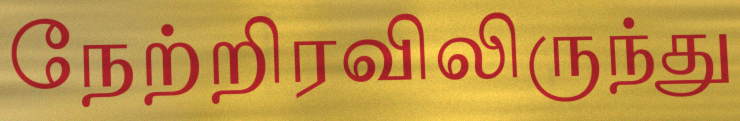
நேற்றிரவிலிருந்து